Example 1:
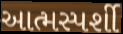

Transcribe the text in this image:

આત્મસ્પર્શી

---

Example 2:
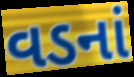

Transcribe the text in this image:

વડનાં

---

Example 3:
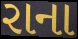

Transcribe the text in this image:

રાના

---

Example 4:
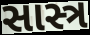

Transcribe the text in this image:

સાસ્ત્ર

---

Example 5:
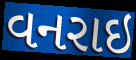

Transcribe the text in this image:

વનરાઇ